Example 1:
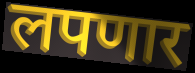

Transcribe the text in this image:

लपणार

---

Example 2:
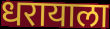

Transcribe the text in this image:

धरायाला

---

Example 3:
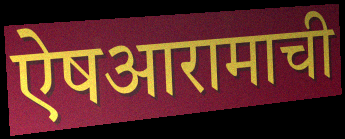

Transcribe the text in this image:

ऐषआरामाची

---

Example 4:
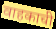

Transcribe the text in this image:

वाहकाची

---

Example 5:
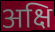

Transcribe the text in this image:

अक्षि